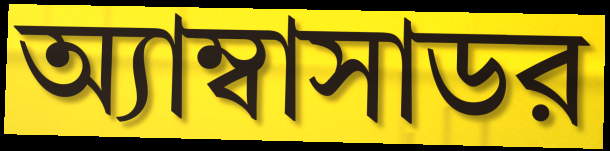
অ্যাম্বাসাডর